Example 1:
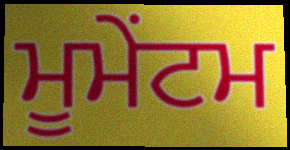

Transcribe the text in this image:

ਮੂਮੇਂਟਮ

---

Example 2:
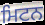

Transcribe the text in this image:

ਮਿਟਨ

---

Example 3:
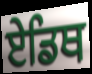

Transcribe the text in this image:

ਏਡਿਥ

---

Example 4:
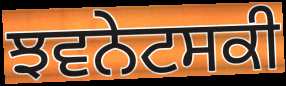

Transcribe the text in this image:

ਝਵਨੇਟਸਕੀ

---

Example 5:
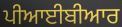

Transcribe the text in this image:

ਪੀਆਈਬੀਆਰ